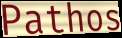
Pathos